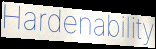
Hardenability